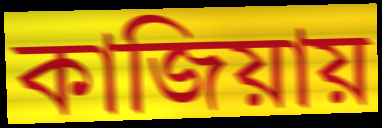
কাজিয়ায়